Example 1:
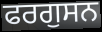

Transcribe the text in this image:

ਫਰਗੁਸਨ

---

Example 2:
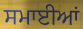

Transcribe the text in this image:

ਸਮਾਈਆਂ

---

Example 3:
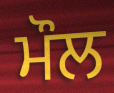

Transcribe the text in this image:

ਮੌਲ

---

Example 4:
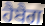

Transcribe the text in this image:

ਹੈਬੈਗ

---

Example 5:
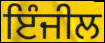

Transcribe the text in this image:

ਇੰਜੀਲ